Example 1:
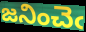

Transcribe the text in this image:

జనించెఁ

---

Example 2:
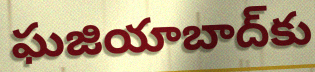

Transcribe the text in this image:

ఘజియాబాద్‌కు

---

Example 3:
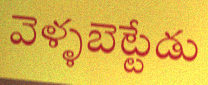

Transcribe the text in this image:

వెళ్ళబెట్టేడు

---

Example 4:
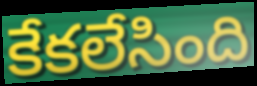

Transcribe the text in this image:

కేకలేసింది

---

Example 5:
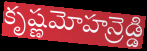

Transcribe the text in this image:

కృష్ణమోహన్రెడ్డి